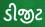
ડીજીટ